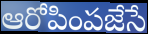
ఆరోపింపజేసే